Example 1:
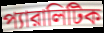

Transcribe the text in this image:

প্যারালিটিক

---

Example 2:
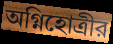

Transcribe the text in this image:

অগ্নিহোত্রীর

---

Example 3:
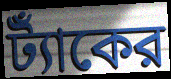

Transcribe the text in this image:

ট্যাঁকের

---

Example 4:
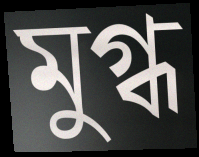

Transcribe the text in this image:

মুগ্ধ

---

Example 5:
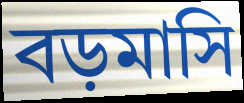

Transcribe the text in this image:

বড়মাসি